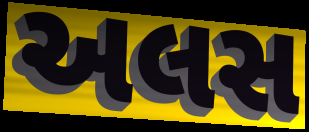
અલસ